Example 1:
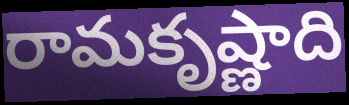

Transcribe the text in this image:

రామకృష్ణాది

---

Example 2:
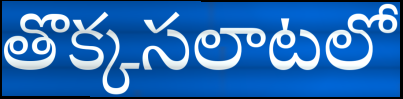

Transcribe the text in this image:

తొక్కసలాటలో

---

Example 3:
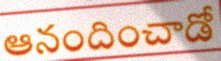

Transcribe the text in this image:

ఆనందించాడో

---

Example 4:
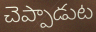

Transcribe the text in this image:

చెప్పాడుట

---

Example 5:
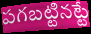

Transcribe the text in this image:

పగబట్టినట్టే